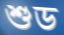
শুড